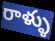
రాళ్ళు